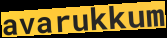
avarukkum